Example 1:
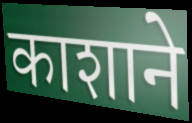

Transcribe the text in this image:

काशाने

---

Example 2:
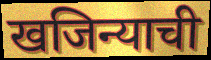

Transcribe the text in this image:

खजिन्याची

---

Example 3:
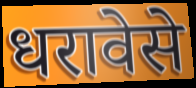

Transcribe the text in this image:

धरावेसे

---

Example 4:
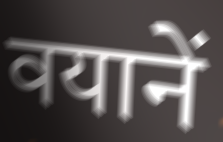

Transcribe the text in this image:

वयानें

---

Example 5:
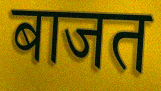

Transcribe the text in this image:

बाजत